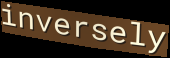
inversely